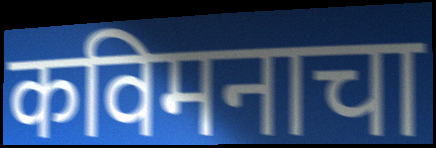
कविमनाचा